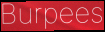
Burpees